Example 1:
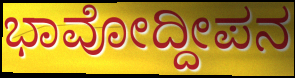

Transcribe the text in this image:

ಭಾವೋದ್ದೀಪನ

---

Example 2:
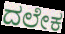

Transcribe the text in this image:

ದಲೇಕ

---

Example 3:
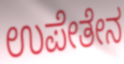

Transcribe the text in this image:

ಉಪೇತೇನ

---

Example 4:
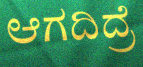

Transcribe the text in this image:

ಆಗದಿದ್ರೆ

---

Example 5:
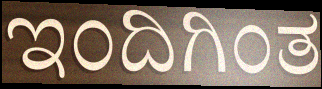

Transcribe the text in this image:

ಇಂದಿಗಿಂತ